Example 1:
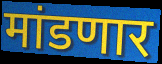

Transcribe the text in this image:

मांडणार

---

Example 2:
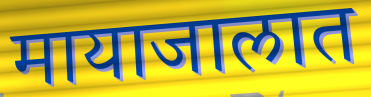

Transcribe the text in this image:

मायाजालात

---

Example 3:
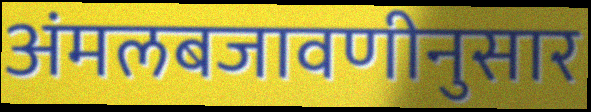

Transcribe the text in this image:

अंमलबजावणीनुसार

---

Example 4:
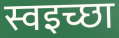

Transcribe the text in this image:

स्वइच्छा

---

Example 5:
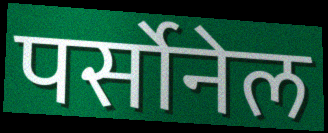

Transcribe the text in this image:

पर्सोनेल